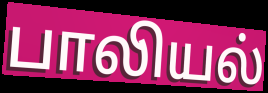
பாலியல்